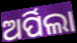
ଅର୍ପିଲା